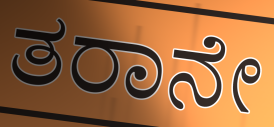
ತರಾನೇ